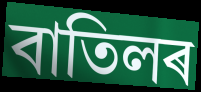
বাতিলৰ